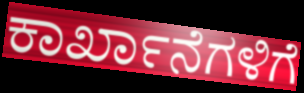
ಕಾರ್ಖಾನೆಗಳಿಗೆ